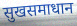
सुखसमाधान